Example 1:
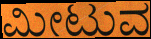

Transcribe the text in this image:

ಮೀಟುವ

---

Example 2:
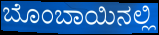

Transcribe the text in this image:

ಬೊಂಬಾಯಿನಲ್ಲಿ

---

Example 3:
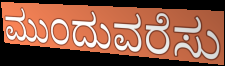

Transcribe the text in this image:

ಮುಂದುವರೆಸು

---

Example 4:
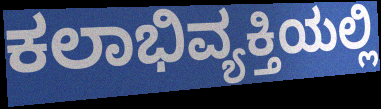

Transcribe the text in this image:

ಕಲಾಭಿವ್ಯಕ್ತಿಯಲ್ಲಿ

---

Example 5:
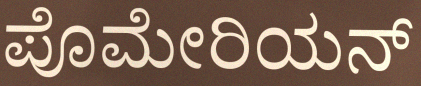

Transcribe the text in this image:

ಪೊಮೇರಿಯನ್